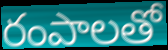
రంపాలతో